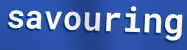
savouring